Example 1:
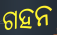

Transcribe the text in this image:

ଗହନ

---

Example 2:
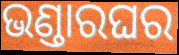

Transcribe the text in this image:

ଭଣ୍ଡାରଘର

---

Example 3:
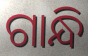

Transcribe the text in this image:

ଗାନ୍ଧି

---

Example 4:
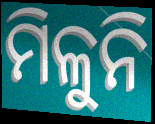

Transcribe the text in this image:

ମିଳୁନି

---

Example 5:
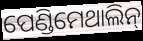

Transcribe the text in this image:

ପେଣ୍ଡିମେଥାଲିନ୍